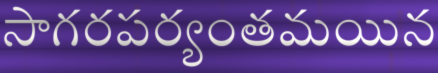
సాగరపర్యంతమయిన